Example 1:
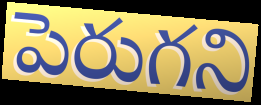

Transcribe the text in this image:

పెరుగని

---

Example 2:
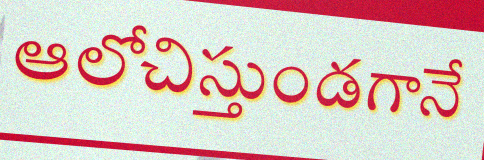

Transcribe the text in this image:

ఆలోచిస్తుండగానే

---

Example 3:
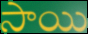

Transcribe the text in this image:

సాయి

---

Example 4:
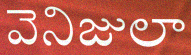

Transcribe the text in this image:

వెనిజులా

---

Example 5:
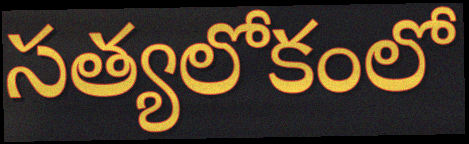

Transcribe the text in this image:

సత్యలోకంలో